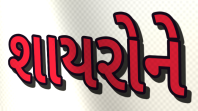
શાયરોને